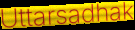
Uttarsadhak